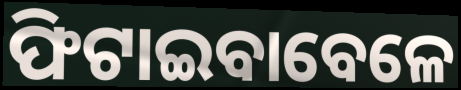
ଫିଟାଇବାବେଳେ